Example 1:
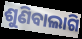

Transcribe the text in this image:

ଶୁଣିବାଲାଗି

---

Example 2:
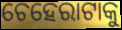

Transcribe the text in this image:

ଚେହେରାଟାକୁ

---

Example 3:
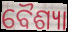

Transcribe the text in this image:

ବୈଶ୍ଯା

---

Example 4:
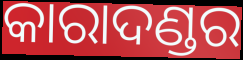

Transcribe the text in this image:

କାରାଦଣ୍ଡର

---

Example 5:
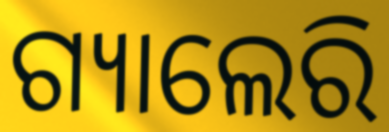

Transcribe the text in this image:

ଗ୍ୟାଲେରି